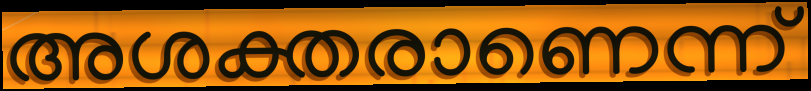
അശക്തരാണെന്ന്